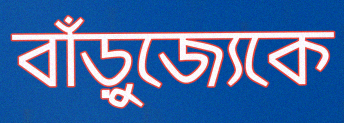
বাঁড়ুজ্যেকে